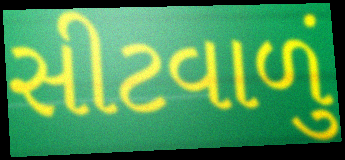
સીટવાળું